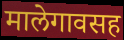
मालेगावसह